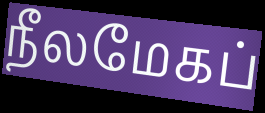
நீலமேகப்